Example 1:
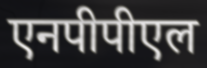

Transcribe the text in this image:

एनपीपीएल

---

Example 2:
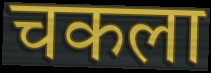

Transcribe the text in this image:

चकला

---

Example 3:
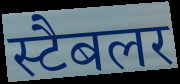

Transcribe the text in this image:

स्टैबलर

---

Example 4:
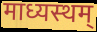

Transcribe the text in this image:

माध्यस्थम्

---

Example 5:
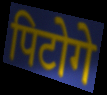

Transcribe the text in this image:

पिटोगे